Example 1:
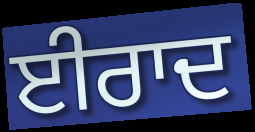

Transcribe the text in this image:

ਈਰਾਦ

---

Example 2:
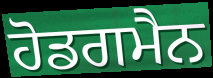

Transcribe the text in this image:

ਹੋਡਗਮੈਨ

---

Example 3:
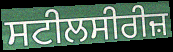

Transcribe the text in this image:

ਸਟੀਲਸੀਰੀਜ਼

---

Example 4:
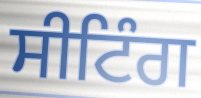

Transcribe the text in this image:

ਸੀਟਿੰਗ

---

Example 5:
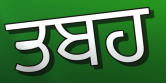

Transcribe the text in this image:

ਤਬਹ